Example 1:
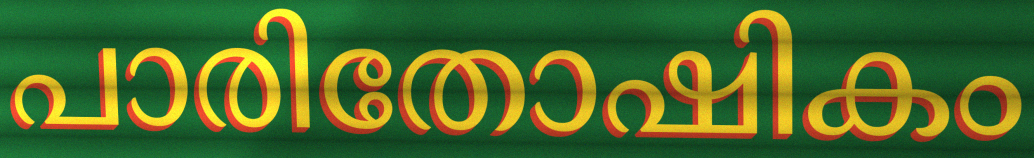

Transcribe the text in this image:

പാരിതോഷികം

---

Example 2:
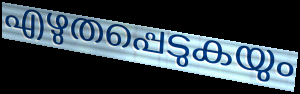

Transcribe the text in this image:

എഴുതപ്പെടുകയും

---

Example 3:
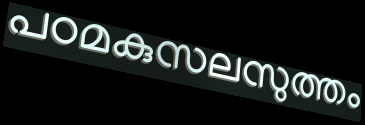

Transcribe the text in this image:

പഠമകുസലസുത്തം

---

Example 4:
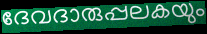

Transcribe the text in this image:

ദേവദാരുപ്പലകയും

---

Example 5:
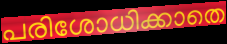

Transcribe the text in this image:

പരിശോധിക്കാതെ